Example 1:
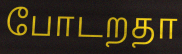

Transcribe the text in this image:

போடறதா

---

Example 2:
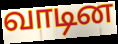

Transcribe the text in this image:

வாடின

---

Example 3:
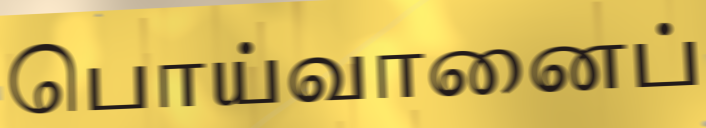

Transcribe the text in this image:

பொய்வானைப்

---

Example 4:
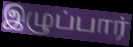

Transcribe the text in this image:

இழுப்பார்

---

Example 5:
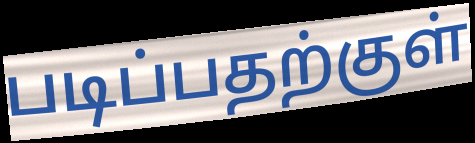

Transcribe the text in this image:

படிப்பதற்குள்